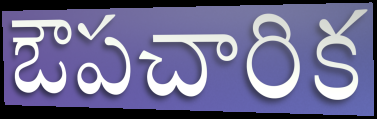
ఔపచారిక